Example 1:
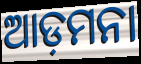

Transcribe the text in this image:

ଆଡ଼ମନା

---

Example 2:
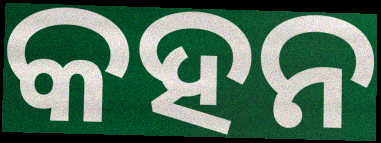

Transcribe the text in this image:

କହନ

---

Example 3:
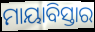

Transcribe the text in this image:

ମାୟାବିସ୍ତାର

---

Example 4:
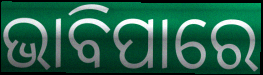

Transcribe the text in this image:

ଭାବିପାରେ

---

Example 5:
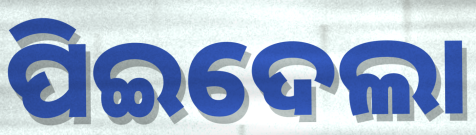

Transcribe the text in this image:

ପିଇଦେଲା